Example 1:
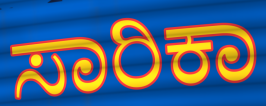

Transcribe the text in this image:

ಸಾರಿಕಾ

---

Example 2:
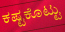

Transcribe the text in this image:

ಕಷ್ಟಕೊಟ್ಟು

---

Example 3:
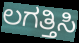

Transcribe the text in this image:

ಲಗತ್ತಿಸಿ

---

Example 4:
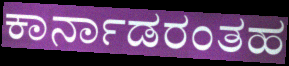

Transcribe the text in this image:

ಕಾರ್ನಾಡರಂತಹ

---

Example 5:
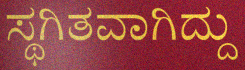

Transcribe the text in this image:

ಸ್ಥಗಿತವಾಗಿದ್ದು